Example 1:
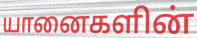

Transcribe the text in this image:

யானைகளின்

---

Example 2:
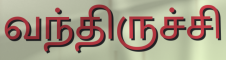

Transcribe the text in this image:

வந்திருச்சி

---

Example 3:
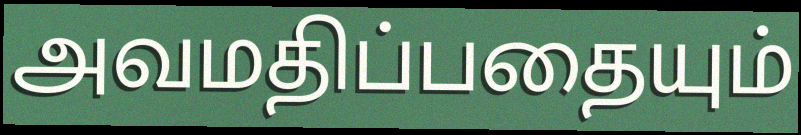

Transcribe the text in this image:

அவமதிப்பதையும்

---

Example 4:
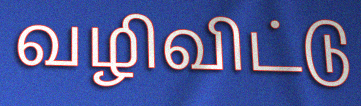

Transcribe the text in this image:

வழிவிட்டு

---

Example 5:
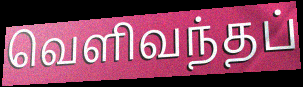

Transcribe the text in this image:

வெளிவந்தப்